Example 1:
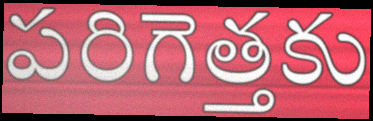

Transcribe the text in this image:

పరిగెత్తకు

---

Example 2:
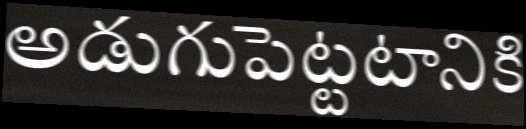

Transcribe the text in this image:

అడుగుపెట్టటానికి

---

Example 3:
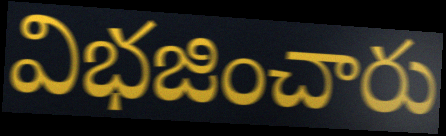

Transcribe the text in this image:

విభజించారు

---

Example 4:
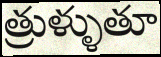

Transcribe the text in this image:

త్రుళ్ళుతూ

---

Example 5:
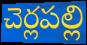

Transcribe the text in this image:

చెర్లపల్లి